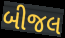
બીજલ